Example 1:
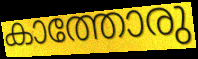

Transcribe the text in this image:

കാത്തോരു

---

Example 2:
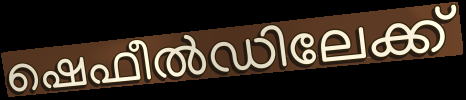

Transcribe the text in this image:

ഷെഫീൽഡിലേക്ക്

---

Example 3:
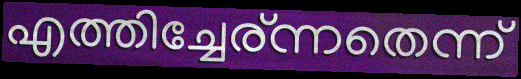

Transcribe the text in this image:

എത്തിച്ചേര്ന്നതെന്ന്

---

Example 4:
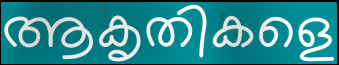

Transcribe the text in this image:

ആകൃതികളെ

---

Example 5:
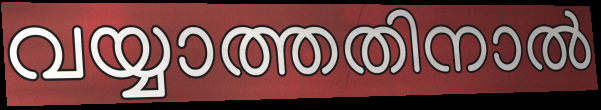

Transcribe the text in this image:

വയ്യാത്തതിനാൽ